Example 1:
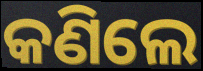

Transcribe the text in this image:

କଣିଲେ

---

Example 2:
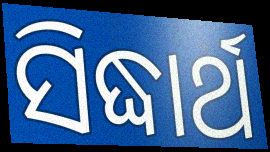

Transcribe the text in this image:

ସିଦ୍ଧାର୍ଥ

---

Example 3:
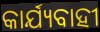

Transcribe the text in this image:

କାର୍ଯ୍ୟବାହୀ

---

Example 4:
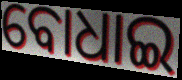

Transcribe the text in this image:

ବୋଧାଇ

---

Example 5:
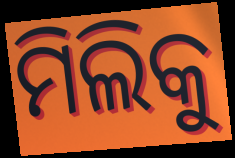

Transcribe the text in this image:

ମିଲିକୁ